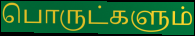
பொருட்களும்